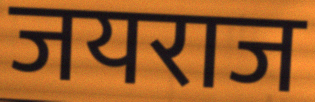
जयराज